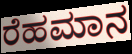
ರೆಹಮಾನ